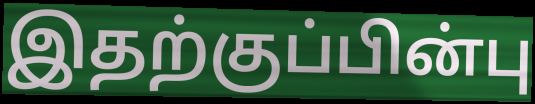
இதற்குப்பின்பு